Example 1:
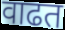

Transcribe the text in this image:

वाढत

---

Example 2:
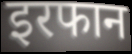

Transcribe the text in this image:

इरफान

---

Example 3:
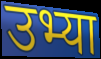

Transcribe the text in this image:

उभ्या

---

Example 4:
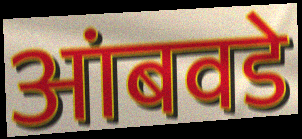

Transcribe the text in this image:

आंबवडे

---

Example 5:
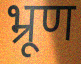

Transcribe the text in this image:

भ्रूण